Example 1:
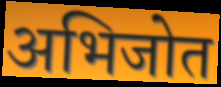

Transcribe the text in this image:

अभिजोत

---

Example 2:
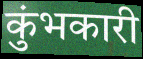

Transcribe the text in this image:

कुंभकारी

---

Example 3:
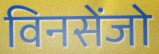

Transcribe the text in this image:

विनसेंजो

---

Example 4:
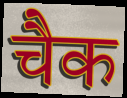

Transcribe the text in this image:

चैक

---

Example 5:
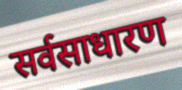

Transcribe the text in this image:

सर्वसाधारण